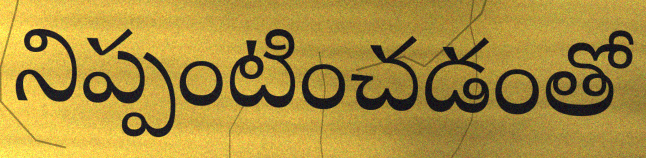
నిప్పంటించడంతో